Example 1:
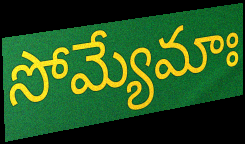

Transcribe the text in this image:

సోమ్యేమాః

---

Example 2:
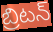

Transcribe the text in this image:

బ్రిటన్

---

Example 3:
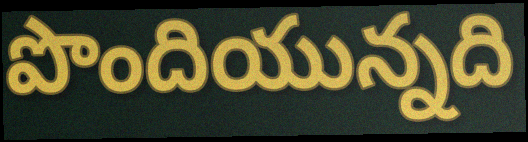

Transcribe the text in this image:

పొందియున్నది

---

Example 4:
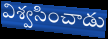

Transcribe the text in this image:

విశ్వసించాడు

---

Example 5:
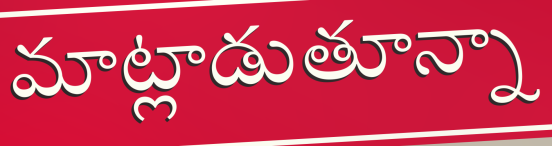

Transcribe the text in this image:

మాట్లాడుతూన్నా